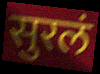
सुरलं